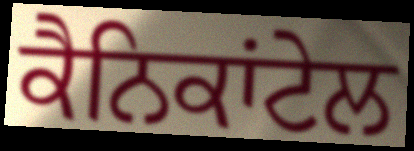
ਕੈਨਿਕਾਂਟੇਲ